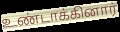
உண்டாக்கினார்